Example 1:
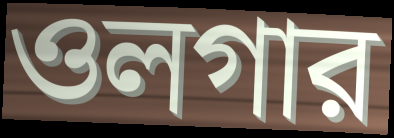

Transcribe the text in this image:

ওলগার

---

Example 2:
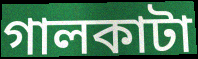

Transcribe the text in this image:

গালকাটা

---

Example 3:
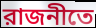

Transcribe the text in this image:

রাজনীতে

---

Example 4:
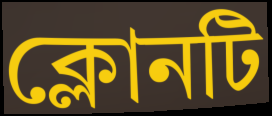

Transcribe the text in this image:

ক্লোনটি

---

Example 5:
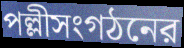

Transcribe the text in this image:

পল্লীসংগঠনের